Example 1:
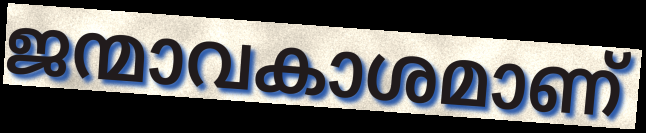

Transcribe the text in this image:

ജന്മാവകാശമാണ്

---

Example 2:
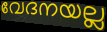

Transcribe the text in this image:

വേദനയല്ല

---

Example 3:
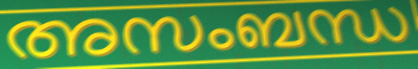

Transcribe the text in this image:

അസംബന്ധ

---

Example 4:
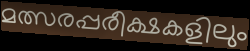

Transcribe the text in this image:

മത്സരപ്പരീക്ഷകളിലും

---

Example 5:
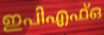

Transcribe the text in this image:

ഇപിഎഫ്ഒ